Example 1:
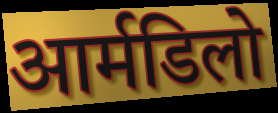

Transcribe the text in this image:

आर्मडिलो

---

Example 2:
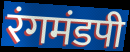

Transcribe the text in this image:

रंगमंडपी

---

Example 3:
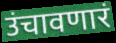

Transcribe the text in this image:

उंचावणारं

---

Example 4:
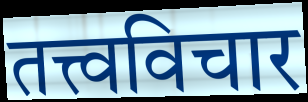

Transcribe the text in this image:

तत्त्वविचार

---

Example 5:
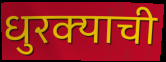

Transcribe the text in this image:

धुरक्याची